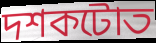
দশকটোত